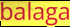
balaga